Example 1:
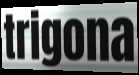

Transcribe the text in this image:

trigona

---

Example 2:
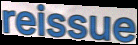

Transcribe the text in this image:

reissue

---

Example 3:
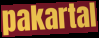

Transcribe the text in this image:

pakartal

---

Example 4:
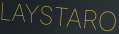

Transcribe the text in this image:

LAYSTARO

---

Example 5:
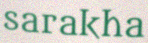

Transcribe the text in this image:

sarakha